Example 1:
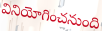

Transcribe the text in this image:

వినియోగించనుంది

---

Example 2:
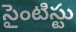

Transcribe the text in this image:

సైంటిస్టు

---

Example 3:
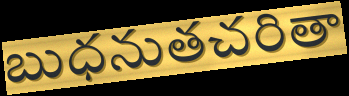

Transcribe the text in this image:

బుధనుతచరితా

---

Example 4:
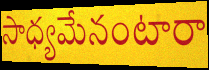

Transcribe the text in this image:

సాధ్యమేనంటారా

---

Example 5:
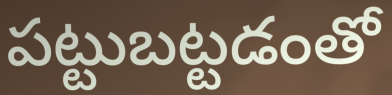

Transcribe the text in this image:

పట్టుబట్టడంతో